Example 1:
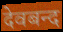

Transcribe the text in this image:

देवबन्द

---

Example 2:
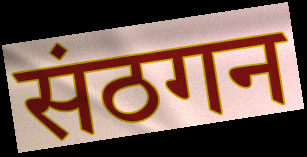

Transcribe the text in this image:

संठगन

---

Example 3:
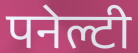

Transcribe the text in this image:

पनेल्टी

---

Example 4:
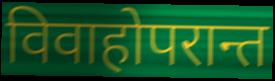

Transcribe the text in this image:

विवाहोपरान्त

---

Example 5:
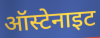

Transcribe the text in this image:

ऑस्टेनाइट